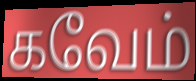
கவேம்